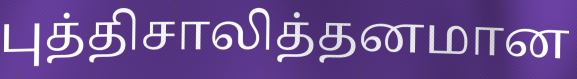
புத்திசாலித்தனமான